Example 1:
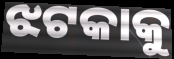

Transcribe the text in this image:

ଝଟକାକୁ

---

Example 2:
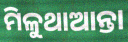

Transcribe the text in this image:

ମିଳୁଥାଆନ୍ତା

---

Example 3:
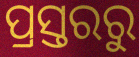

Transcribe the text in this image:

ପ୍ରସ୍ତରରୁ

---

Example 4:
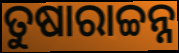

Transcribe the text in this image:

ତୁଷାରାଚ୍ଚନ୍ନ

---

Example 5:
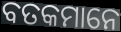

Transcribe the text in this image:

ବତକମାନେ